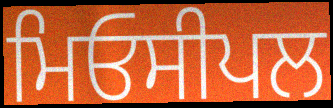
ਮਿਓਸੀਪਲ